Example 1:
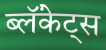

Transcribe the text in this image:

ब्लॅंकेट्स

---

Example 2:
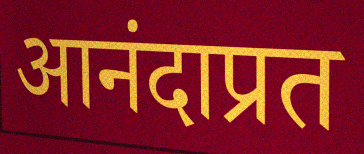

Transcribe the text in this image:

आनंदाप्रत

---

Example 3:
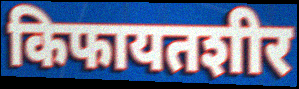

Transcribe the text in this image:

किफायतशीर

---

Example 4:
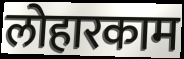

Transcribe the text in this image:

लोहारकाम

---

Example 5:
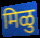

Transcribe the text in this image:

मिळु